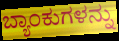
ಬ್ಯಾಂಕುಗಳನ್ನು